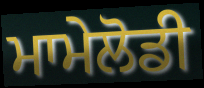
ਮਾਮੇਲੋਡੀ